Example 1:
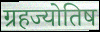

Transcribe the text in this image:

ग्रहज्योतिष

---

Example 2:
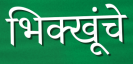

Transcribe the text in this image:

भिक्खूंचे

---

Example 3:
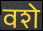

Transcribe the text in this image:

वशे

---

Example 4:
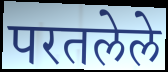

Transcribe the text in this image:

परतलेले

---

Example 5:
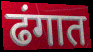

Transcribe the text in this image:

ढंगात